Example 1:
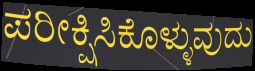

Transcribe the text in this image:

ಪರೀಕ್ಷಿಸಿಕೊಳ್ಳುವುದು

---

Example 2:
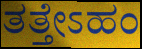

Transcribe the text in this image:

ತತ್ತೇಽಹಂ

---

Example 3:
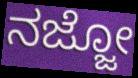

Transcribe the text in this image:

ನಜ್ಜೋ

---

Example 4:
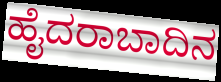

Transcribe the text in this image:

ಹೈದರಾಬಾದಿನ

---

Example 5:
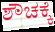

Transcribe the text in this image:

ಶೌಚಕ್ಕೆ